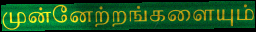
முன்னேற்றங்களையும்